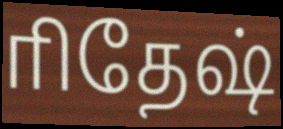
ரிதேஷ்